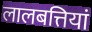
लालबत्तियां